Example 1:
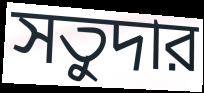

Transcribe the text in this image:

সতুদার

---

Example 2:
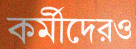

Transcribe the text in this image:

কর্মীদেরও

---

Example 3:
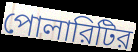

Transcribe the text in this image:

পোলারিটির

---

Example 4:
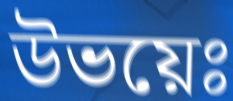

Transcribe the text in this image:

উভয়েঃ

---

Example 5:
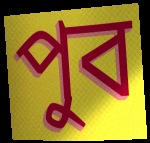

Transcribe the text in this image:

পুব